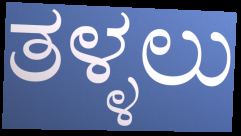
ತಳ್ಳಲು